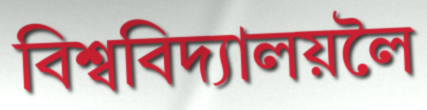
বিশ্ববিদ্যালয়লৈ